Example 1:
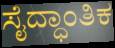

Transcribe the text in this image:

ಸೈದ್ಧಾಂತಿಕ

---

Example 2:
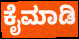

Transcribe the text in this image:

ಕೈಮಾಡಿ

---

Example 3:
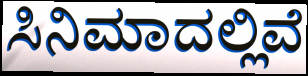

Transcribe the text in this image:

ಸಿನಿಮಾದಲ್ಲಿವೆ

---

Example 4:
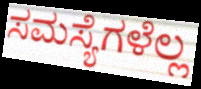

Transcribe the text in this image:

ಸಮಸ್ಯೆಗಳೆಲ್ಲ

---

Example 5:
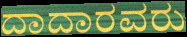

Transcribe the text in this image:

ದಾದಾರವರು